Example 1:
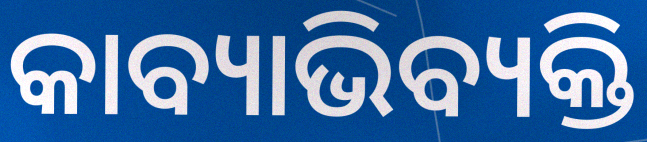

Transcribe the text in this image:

କାବ୍ୟାଭିବ୍ୟକ୍ତି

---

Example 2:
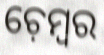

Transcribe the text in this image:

ଚ଼େମ୍ୱର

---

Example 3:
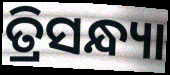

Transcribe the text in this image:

ତ୍ରିସନ୍ଧ୍ୟା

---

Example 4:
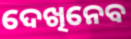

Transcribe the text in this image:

ଦେଖିନେବ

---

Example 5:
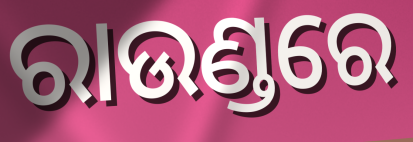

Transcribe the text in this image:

ରାଉଣ୍ଡରେ